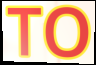
TO